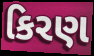
કિરણ